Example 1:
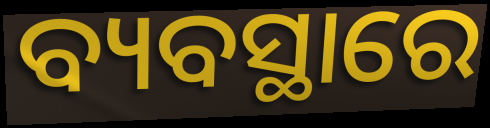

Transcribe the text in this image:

ବ୍ୟବସ୍ଥାରେ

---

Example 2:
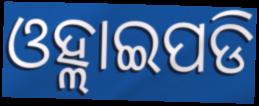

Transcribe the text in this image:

ଓହ୍ଲାଇପଡି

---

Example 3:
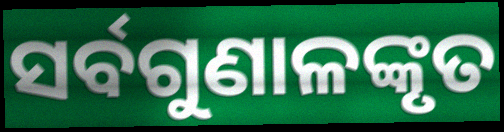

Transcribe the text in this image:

ସର୍ବଗୁଣାଳଙ୍କୃତ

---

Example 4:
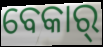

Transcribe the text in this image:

ବେକାର୍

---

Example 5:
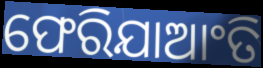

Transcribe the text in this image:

ଫେରିଯାଆଂତି